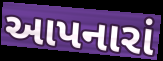
આપનારાં